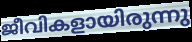
ജീവികളായിരുന്നു